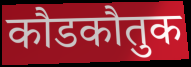
कौडकौतुक